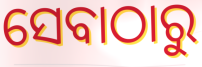
ସେବାଠାରୁ